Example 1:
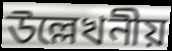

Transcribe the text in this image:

উল্লেখনীয়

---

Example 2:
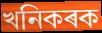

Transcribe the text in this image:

খনিকৰক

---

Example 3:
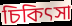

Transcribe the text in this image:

চিকিৎসা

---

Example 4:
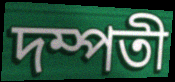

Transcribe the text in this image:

দম্পতী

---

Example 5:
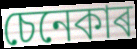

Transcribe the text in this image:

চেনেকাৰ